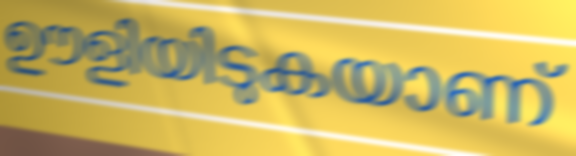
ഊളിയിടുകയാണ്